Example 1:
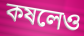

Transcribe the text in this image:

কষলেও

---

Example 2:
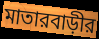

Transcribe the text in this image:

মাতারবাড়ীর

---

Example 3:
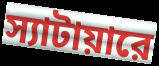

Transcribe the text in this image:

স্যাটায়ারে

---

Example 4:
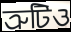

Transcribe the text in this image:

ত্রুটিও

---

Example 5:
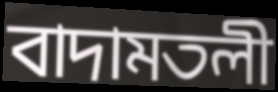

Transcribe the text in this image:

বাদামতলী